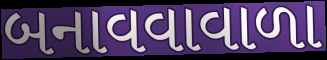
બનાવવાવાળા